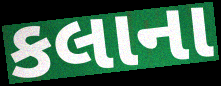
કલાના